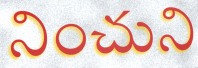
నించుని